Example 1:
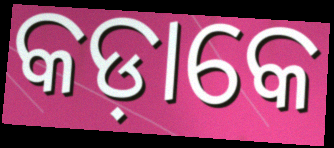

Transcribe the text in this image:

କଡ଼ାକେ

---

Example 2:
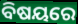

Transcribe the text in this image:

ବିଷୟରେ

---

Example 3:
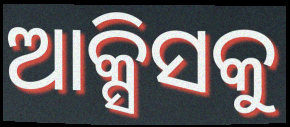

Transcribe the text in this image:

ଆକ୍ସିସକୁ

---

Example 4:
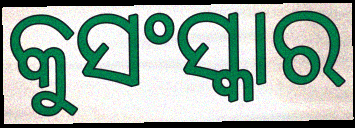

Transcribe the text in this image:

କୁସଂସ୍କାର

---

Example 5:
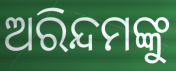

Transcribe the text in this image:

ଅରିନ୍ଦମଙ୍କୁ